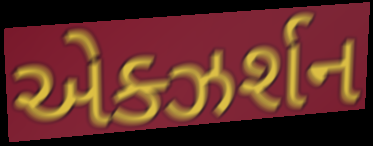
એક્ઝર્શન